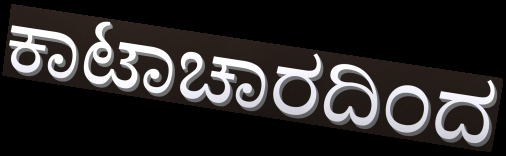
ಕಾಟಾಚಾರದಿಂದ